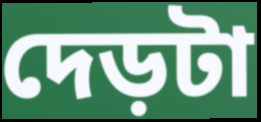
দেড়টা